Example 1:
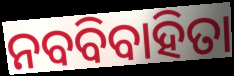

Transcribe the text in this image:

ନବବିବାହିତା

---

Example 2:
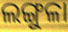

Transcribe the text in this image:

ଲଙ୍ଗୁଳା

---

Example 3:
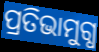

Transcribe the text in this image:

ପ୍ରତିଭାମୁଗ୍ଧ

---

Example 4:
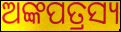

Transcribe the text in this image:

ଅଙ୍କପତ୍ରସ୍ୟ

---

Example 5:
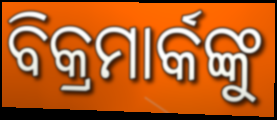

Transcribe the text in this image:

ବିକ୍ରମାର୍କଙ୍କୁ